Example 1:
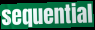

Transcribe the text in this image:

sequential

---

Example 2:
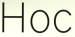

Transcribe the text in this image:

Hoc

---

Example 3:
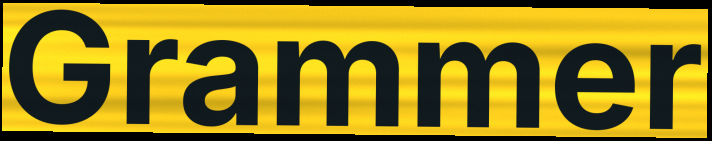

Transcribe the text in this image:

Grammer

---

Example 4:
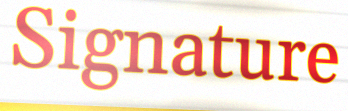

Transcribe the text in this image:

Signature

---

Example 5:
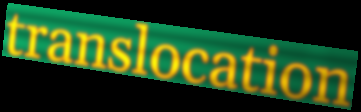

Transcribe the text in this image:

translocation